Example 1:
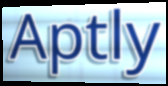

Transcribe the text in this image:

Aptly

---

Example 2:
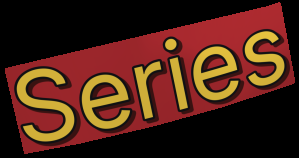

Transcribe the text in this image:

Series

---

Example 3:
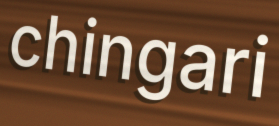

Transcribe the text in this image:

chingari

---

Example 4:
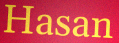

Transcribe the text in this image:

Hasan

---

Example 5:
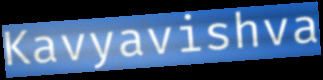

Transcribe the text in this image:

Kavyavishva